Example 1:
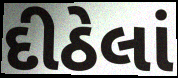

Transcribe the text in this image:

દીઠેલાં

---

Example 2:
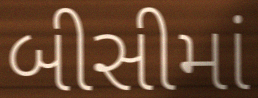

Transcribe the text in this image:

બીસીમાં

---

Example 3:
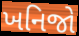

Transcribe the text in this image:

ખનિજો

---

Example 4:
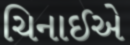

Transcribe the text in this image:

ચિનાઈએ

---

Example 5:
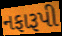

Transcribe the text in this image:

નફારૂપી